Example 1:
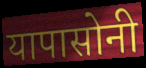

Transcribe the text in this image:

यापासोनी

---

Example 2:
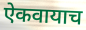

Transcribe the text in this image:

ऐकवायाच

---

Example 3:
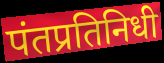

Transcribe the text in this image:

पंतप्रतिनिधी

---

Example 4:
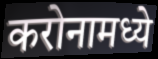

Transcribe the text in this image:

करोनामध्ये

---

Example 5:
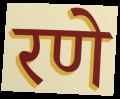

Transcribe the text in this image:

रणे